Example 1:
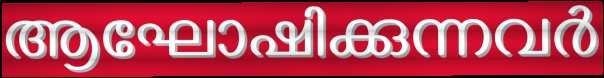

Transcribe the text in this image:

ആഘോഷിക്കുന്നവർ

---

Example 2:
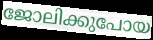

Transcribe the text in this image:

ജോലിക്കുപോയ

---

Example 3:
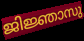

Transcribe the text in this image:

ജിജ്ഞാസു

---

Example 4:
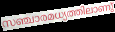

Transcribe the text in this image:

സഞ്ചാരമധ്യത്തിലാണു്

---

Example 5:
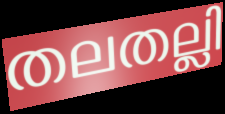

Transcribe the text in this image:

തലതല്ലി